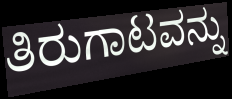
ತಿರುಗಾಟವನ್ನು